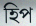
হিপ